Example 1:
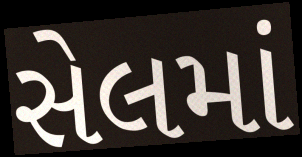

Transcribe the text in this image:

સેલમાં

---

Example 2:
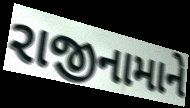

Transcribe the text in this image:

રાજીનામાને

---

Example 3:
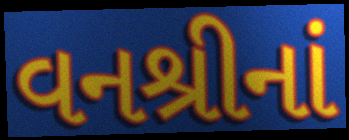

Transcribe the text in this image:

વનશ્રીનાં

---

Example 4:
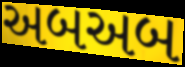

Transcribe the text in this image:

અબઅબ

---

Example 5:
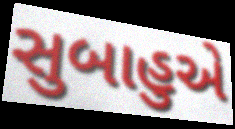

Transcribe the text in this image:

સુબાહુએ